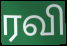
ரவி